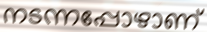
നടന്നപ്പോഴാണ്